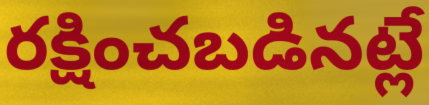
రక్షించబడినట్లే